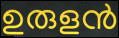
ഉരുളൻ